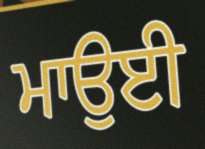
ਮਾਉਈ